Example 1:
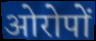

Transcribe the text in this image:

ओरोपों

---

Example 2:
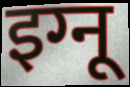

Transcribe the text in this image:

इग्‍नू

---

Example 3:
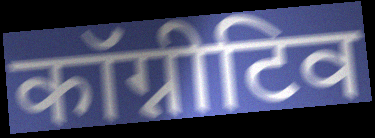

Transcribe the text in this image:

कॉग्नीटिव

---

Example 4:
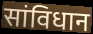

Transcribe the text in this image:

सांविधान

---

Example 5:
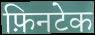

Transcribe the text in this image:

फ़िनटेक